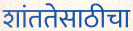
शांततेसाठीचा